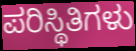
ಪರಿಸ್ಥಿತಿಗಳು